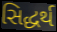
સિદ્ધર્થ